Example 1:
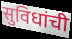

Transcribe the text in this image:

सुविधांची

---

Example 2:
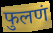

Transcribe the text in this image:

फुलणं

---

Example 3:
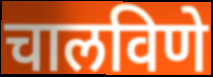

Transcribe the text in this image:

चालविणे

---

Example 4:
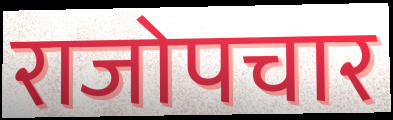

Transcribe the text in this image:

राजोपचार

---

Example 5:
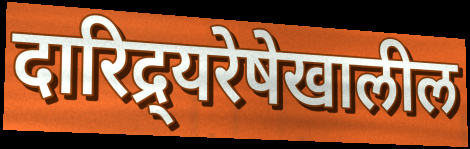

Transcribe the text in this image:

दारिद्र्यरेषेखालील